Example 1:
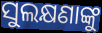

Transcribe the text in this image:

ସୁଲକ୍ଷଣାଙ୍କୁ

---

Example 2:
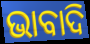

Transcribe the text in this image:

ଭାବାଦି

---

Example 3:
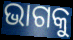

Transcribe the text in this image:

ଭାଗକୁ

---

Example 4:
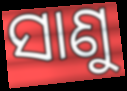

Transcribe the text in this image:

ସାଣୁ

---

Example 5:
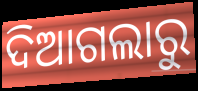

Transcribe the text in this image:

ଦିଆଗଲାରୁ